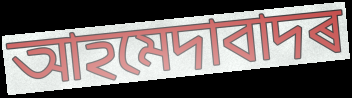
আহমেদাবাদৰ